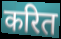
करित